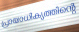
പ്രായാധിക്യത്തിന്റെ